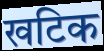
खटिक